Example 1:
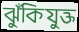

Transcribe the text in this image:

ঝুঁকিযুক্ত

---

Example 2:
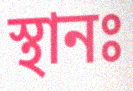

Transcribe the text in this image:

স্থানঃ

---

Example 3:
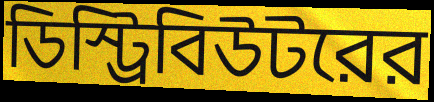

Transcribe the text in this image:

ডিস্ট্রিবিউটরের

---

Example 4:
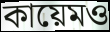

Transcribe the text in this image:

কায়েমও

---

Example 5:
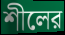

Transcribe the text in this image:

শীলের